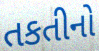
તકતીનો